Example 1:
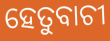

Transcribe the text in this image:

ହେତୁବାଚୀ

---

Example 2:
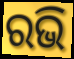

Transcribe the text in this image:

ରଭି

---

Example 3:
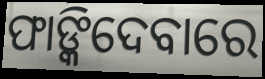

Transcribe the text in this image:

ଫାଙ୍କିଦେବାରେ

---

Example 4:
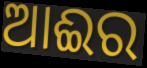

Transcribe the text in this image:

ଆଈର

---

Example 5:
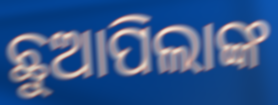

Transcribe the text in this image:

ଛୁଆପିଲାଙ୍କ